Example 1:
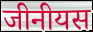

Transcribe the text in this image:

जीनीयस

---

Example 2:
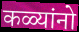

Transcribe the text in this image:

कळ्यांनो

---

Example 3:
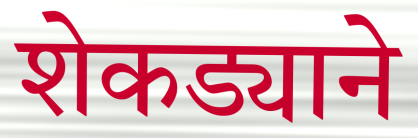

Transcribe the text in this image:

शेकड्याने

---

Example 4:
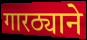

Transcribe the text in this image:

गारठ्याने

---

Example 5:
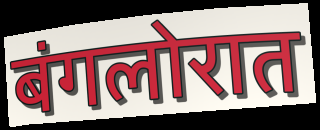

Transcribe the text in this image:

बंगलोरात